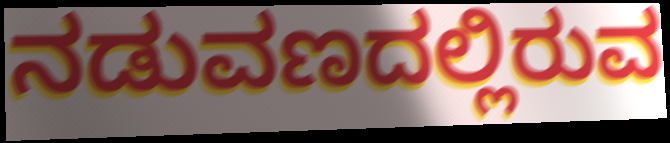
ನಡುವಣದಲ್ಲಿರುವ